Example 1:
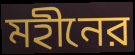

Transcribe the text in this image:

মহীনের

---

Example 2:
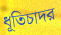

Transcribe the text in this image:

ধূতিচাদর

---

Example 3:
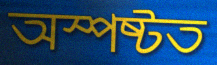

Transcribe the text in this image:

অস্পষ্টত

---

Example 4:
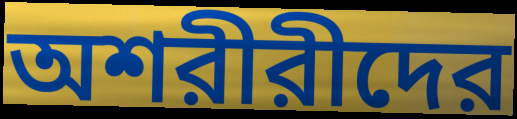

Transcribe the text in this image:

অশরীরীদের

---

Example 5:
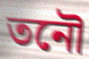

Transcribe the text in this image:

তনৌ